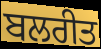
ਬਲਰੀਤ